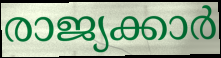
രാജ്യക്കാർ